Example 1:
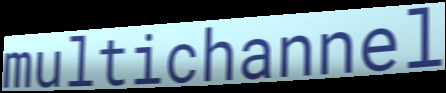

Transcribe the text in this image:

multichannel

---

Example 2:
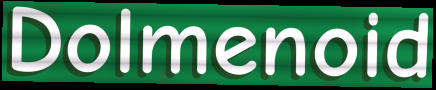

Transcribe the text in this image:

Dolmenoid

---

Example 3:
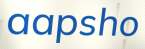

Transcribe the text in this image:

aapsho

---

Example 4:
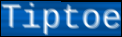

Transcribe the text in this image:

Tiptoe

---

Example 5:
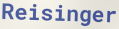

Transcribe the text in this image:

Reisinger